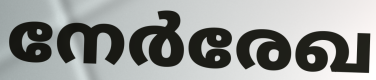
നേർരേഖ